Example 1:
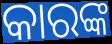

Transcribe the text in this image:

କାରଙ୍କ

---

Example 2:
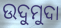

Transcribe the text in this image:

ଉଦୁମୁଦା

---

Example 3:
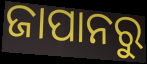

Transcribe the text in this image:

ଜାପାନରୁ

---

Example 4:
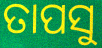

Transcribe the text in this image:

ତାପସୁ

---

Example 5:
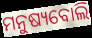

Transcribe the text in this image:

ମନୁଷ୍ୟବୋଲି